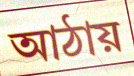
আঠায়